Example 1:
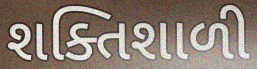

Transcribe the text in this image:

શક્તિશાળી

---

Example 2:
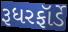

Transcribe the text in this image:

રૂધરફૉર્ડે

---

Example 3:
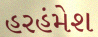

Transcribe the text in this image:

હરહંમેશ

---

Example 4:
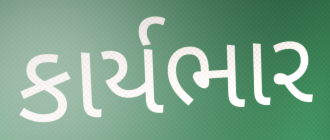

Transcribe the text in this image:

કાર્યભાર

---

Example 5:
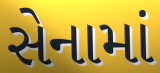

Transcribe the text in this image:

સેનામાં